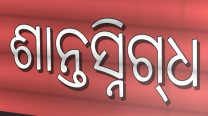
ଶାନ୍ତସ୍ନିଗ୍‌ଧ